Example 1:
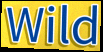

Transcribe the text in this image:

Wild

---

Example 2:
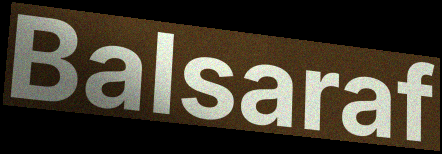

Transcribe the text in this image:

Balsaraf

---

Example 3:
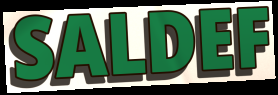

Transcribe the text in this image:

SALDEF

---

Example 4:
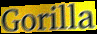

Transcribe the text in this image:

Gorilla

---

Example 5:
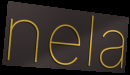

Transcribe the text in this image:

nela